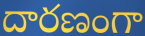
దారణంగా